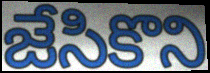
జేసికొని